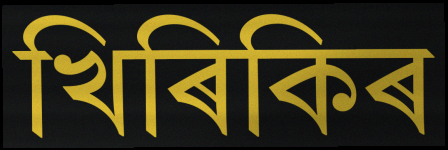
খিৰিকিৰ